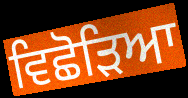
ਵਿਛੋੜਿਆ